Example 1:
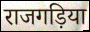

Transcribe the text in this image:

राजगड़िया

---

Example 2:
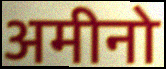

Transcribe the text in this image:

अमीनो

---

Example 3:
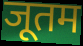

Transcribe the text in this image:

जूतम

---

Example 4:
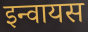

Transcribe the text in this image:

इन्वायस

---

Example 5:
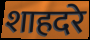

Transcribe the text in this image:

शाहदरे